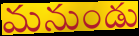
మనుండు